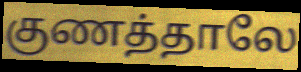
குணத்தாலே